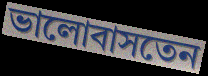
ভালোবাসতেন